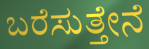
ಬರೆಸುತ್ತೇನೆ